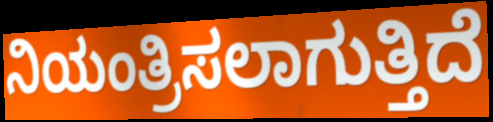
ನಿಯಂತ್ರಿಸಲಾಗುತ್ತಿದೆ